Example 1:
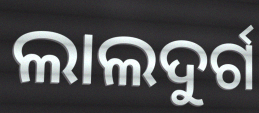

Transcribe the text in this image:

ଲାଲଦୁର୍ଗ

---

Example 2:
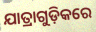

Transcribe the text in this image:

ଯାତ୍ରାଗୁଡ଼ିକରେ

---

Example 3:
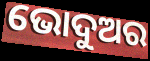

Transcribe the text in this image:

ଭୋଦୁଅର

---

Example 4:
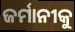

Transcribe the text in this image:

ଜର୍ମାନୀକୁ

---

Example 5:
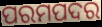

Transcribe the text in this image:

ପରମପଦର